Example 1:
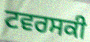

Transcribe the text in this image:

ਟਵਰਸਕੀ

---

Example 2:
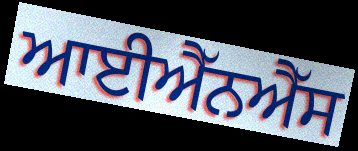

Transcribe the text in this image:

ਆਈਐੱਨਐੱਸ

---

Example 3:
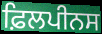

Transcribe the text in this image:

ਫ਼ਿਲਪੀਨਸ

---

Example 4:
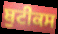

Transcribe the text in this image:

ਬੁਟੀਕਸ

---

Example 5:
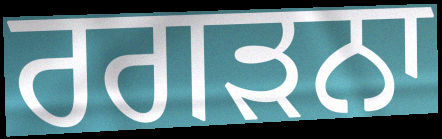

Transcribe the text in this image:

ਰਗੜਨਾ